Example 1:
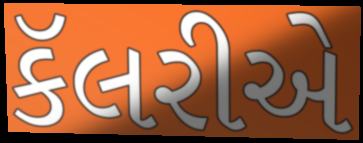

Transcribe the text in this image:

કૅલરીએ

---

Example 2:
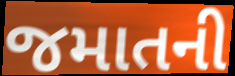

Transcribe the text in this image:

જમાતની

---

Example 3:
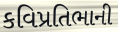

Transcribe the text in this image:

કવિપ્રતિભાની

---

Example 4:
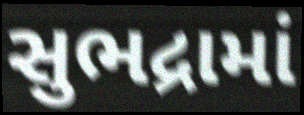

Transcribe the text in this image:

સુભદ્રામાં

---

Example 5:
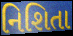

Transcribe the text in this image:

નિશિતા